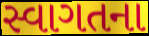
સ્વાગતના